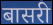
बासरी